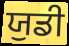
ਯੁਡੀ